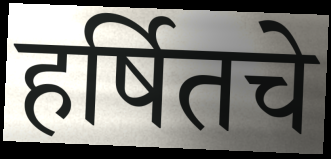
हर्षितचे